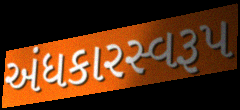
અંધકારસ્વરૂપ